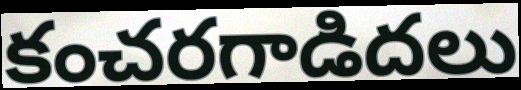
కంచరగాడిదలు